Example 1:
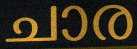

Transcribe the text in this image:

ചാര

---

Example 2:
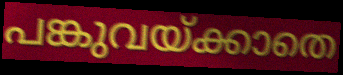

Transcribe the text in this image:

പങ്കുവയ്ക്കാതെ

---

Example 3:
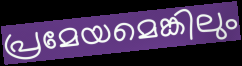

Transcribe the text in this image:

പ്രമേയമെങ്കിലും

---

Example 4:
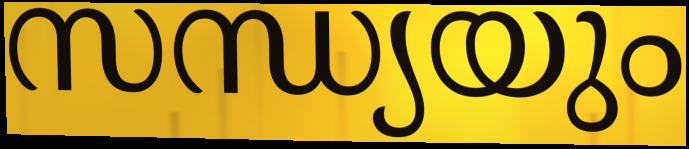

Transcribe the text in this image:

സന്ധ്യയും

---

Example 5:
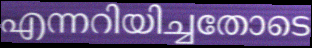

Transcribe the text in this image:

എന്നറിയിച്ചതോടെ